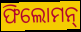
ଫିଲୋମନ୍